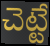
చెట్టే